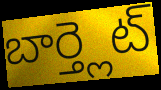
బార్త్లెట్